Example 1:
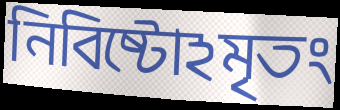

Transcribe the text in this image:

নিবিষ্টোঽমৃতং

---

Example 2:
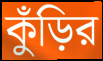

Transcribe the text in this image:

কুঁড়ির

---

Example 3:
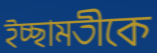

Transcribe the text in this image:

ইচ্ছামতীকে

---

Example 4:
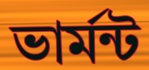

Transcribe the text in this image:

ভার্মন্ট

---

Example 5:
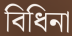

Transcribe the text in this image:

বিধিনা